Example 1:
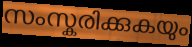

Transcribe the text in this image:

സംസ്കരിക്കുകയും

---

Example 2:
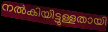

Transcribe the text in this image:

നൽകിയിട്ടുള്ളതായി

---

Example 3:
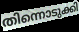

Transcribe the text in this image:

തിന്നൊടുക്കി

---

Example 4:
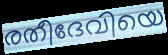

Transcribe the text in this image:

രതീദേവിയെ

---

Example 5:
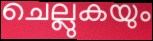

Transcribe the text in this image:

ചെല്ലുകയും